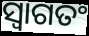
ସ୍ୱାଗତଂ